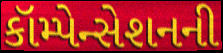
કૉમ્પેન્સેશનની